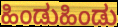
ಹಿಂಡುಹಿಂಡು